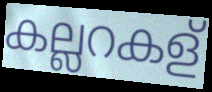
കല്ലറകള്